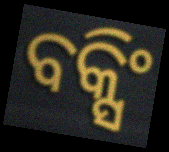
ବକ୍ସିଂ